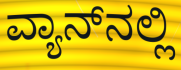
ವ್ಯಾನ್‌ನಲ್ಲಿ